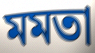
মমতা